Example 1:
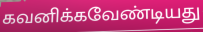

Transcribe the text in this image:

கவனிக்கவேண்டியது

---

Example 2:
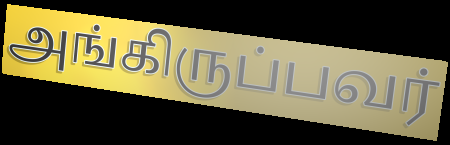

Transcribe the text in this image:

அங்கிருப்பவர்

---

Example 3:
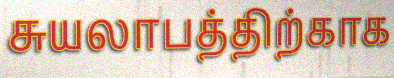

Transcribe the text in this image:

சுயலாபத்திற்காக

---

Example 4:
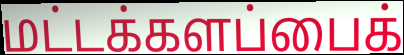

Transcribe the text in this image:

மட்டக்களப்பைக்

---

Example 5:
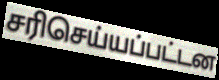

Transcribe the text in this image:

சரிசெய்யப்பட்டன